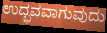
ಉದ್ಭವವಾಗುವುದು